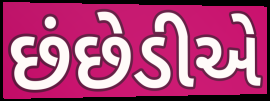
છંછેડીએ